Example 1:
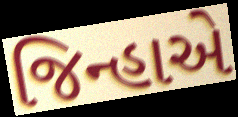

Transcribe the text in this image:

જિન્હાએ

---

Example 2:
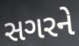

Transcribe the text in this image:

સગરને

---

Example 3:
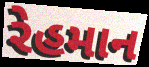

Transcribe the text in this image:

રેહમાન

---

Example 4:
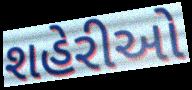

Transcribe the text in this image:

શહેરીઓ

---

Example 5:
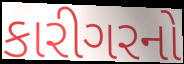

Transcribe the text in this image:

કારીગરનો